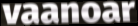
vaanoar